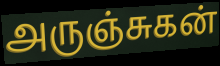
அருஞ்சுகன்